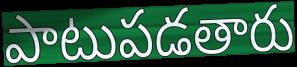
పాటుపడతారు